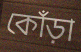
কোঁড়া